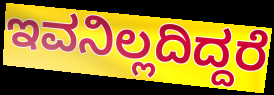
ಇವನಿಲ್ಲದಿದ್ದರೆ